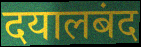
दयालबंद